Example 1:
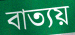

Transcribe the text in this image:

বাত্যয়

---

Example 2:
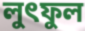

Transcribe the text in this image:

লুৎফুল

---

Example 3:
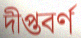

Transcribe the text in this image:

দীপ্তবর্ণ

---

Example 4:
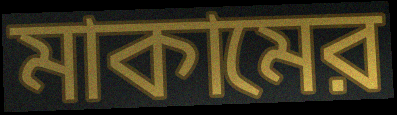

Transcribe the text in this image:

মাকামের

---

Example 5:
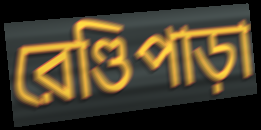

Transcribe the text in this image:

রেণ্ডিপাড়া